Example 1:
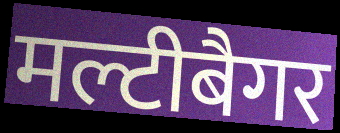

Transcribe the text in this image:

मल्‍टीबैगर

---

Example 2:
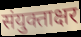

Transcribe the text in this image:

संयुक्ताक्षर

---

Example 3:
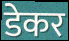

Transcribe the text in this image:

डेकर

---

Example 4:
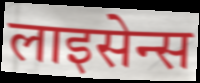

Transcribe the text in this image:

लाइसेन्स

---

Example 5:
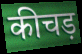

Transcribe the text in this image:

कीचड़